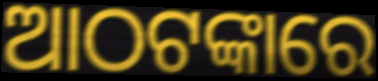
ଆଠଟଙ୍କାରେ